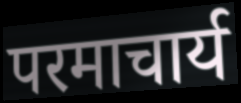
परमाचार्य